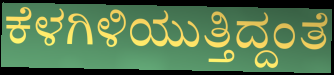
ಕೆಳಗಿಳಿಯುತ್ತಿದ್ದಂತೆ